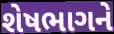
શેષભાગને